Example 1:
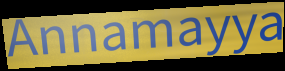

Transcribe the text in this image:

Annamayya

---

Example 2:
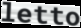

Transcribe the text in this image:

letto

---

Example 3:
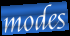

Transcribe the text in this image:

modes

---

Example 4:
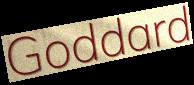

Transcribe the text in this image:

Goddard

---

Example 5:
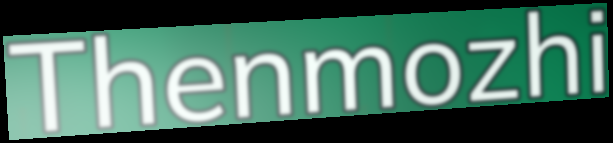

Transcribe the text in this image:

Thenmozhi